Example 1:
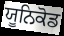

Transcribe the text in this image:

ਯੂਨਿਕੋਡ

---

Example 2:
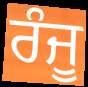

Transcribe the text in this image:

ਰੰਜੂ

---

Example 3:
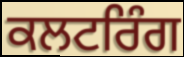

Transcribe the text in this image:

ਕਲਟਰਿੰਗ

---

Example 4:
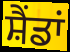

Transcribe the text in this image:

ਸ਼ੈਂਡਾਂ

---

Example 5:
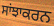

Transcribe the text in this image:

ਸਾਂਝਾਕਰਨ